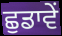
ਛੁਡਾਵੇਂ